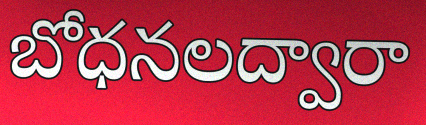
బోధనలద్వారా